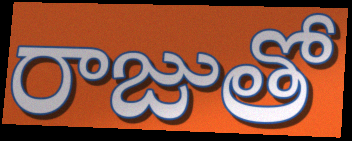
రాజుతో